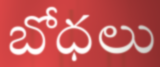
బోధలు